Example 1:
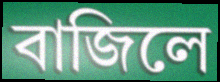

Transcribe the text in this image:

বাজিলে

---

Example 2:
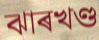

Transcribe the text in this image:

ঝাৰখণ্ড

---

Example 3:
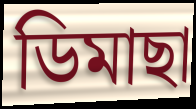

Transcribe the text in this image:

ডিমাছা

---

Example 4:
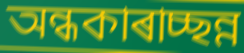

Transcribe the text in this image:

অন্ধকাৰাচ্ছন্ন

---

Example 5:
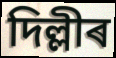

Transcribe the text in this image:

দিল্লীৰ